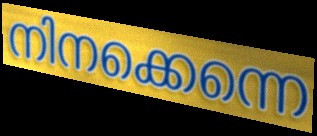
നിനക്കെന്നെ